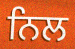
ਨਿਲ